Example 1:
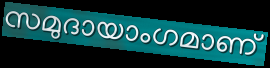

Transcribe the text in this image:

സമുദായാംഗമാണ്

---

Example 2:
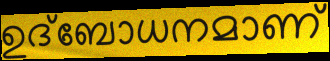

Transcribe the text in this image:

ഉദ്ബോധനമാണ്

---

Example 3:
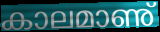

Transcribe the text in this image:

കാലമാണു്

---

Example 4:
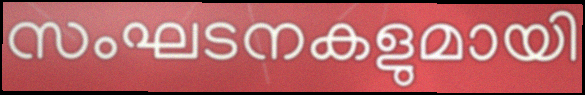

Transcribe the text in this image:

സംഘടനകളുമായി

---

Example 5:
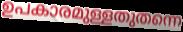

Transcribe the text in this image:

ഉപകാരമുള്ളതുതന്നെ